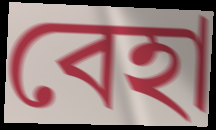
বেহা